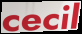
cecil